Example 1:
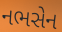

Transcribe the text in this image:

નભસેન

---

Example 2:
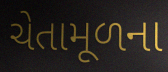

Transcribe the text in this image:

ચેતામૂળના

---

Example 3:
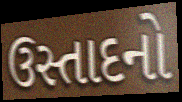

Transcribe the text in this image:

ઉસ્તાદનો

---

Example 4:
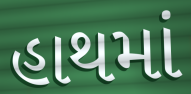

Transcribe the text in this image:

હાથમાં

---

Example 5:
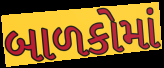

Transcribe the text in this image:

બાળકોમાં